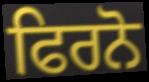
ਫਿਰਨੋ